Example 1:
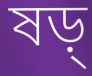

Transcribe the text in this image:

ষড়্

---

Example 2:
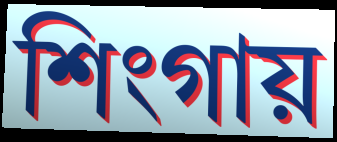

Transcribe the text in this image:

শিংগায়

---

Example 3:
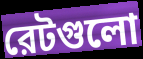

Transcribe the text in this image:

রেটগুলো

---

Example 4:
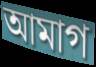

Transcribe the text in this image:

আমাগ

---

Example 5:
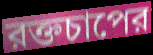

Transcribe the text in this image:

রক্তচাপের